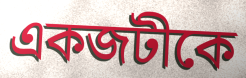
একজটীকে